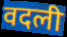
वदली